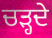
ਚਡ਼੍ਹਦੇ